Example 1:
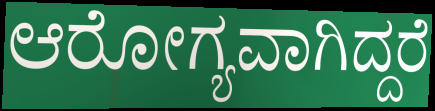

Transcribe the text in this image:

ಆರೋಗ್ಯವಾಗಿದ್ದರೆ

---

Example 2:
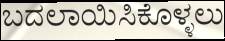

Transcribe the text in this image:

ಬದಲಾಯಿಸಿಕೊಳ್ಳಲು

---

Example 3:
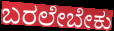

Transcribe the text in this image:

ಬರಲೇಬೇಕು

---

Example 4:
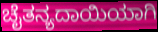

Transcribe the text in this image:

ಚೈತನ್ಯದಾಯಿಯಾಗಿ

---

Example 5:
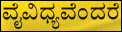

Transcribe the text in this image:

ವೈವಿಧ್ಯವೆಂದರೆ